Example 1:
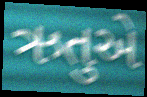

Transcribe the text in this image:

ઋતુએ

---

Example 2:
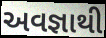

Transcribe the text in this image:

અવજ્ઞાથી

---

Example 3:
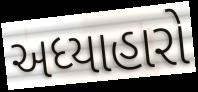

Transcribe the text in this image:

અધ્યાહારો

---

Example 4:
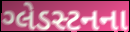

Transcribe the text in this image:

ગ્લેડસ્ટનના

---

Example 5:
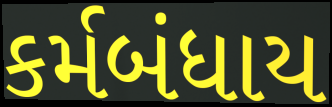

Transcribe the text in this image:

કર્મબંધાય